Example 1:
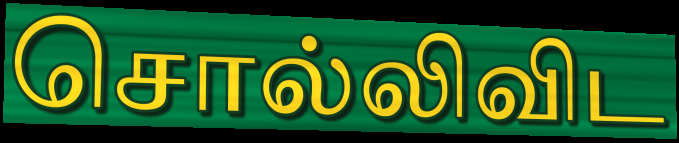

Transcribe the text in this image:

சொல்லிவிட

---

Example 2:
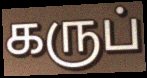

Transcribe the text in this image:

கருப்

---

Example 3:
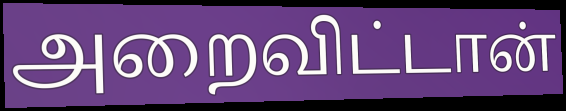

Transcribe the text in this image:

அறைவிட்டான்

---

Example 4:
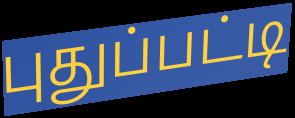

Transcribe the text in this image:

புதுப்பட்டி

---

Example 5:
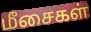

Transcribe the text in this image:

மீசைகள்